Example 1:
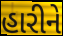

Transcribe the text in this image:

હારીને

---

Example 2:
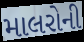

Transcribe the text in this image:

માલરોની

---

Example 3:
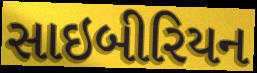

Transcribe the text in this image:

સાઇબીરિયન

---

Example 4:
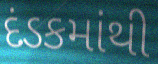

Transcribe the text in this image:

દંડકમાંથી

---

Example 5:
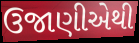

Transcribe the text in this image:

ઉજાણીએથી